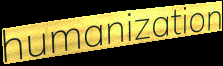
humanization